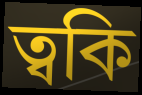
ত্বকি